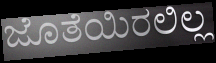
ಜೊತೆಯಿರಲಿಲ್ಲ